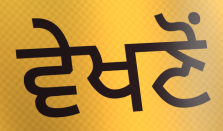
ਵੇਖਣੋਂ